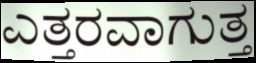
ಎತ್ತರವಾಗುತ್ತ